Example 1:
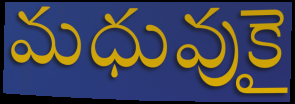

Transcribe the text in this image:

మధువుకై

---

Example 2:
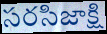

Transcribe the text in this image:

సరసిజాక్షి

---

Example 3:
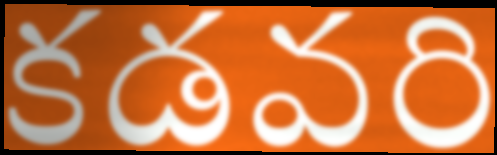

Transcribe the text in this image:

కడవరి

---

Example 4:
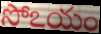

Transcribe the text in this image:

సోఽయం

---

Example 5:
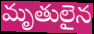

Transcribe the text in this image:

మృతులైన